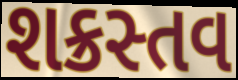
શક્રસ્તવ